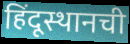
हिंदूस्थानची